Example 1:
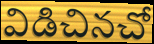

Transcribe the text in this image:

విడిచినచో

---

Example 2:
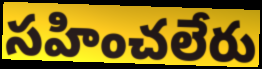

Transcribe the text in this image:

సహించలేరు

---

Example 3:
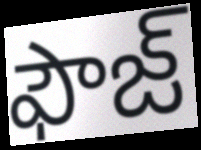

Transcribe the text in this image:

ఫౌజ్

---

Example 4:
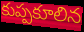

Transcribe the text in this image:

కుప్పకూలిన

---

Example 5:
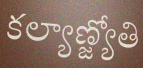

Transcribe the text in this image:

కల్యాణ్జ్యోతి